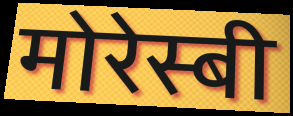
मोरेस्बी